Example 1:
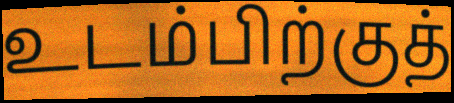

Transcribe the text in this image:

உடம்பிற்குத்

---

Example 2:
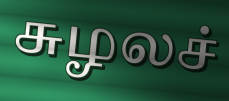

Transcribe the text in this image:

சுழலச்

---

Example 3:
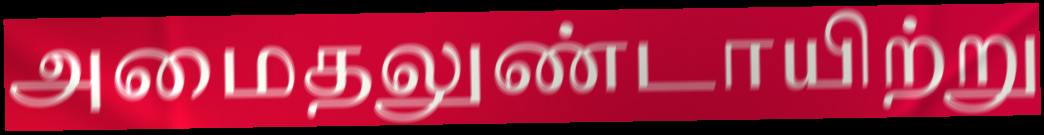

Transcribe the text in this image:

அமைதலுண்டாயிற்று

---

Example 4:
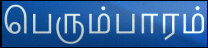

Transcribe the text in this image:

பெரும்பாரம்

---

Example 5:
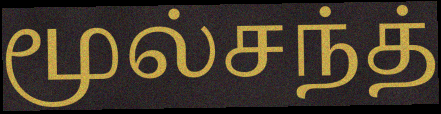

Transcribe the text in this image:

மூல்சந்த்